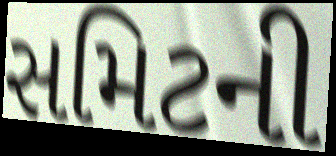
સમિટની